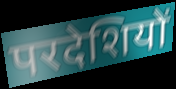
परदेशियों